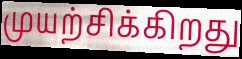
முயற்சிக்கிறது